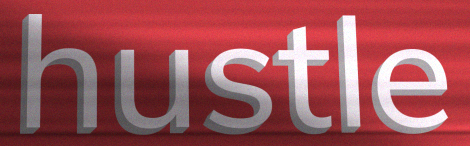
hustle